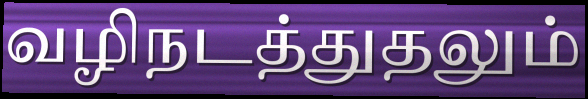
வழிநடத்துதலும்